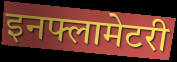
इनफ्लामेटरी